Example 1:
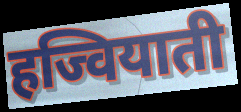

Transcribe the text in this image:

हज्वियाती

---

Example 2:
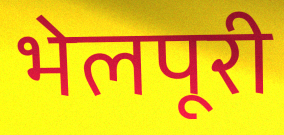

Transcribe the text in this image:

भेलपूरी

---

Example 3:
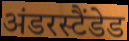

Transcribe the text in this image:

अंडरस्टैंडेड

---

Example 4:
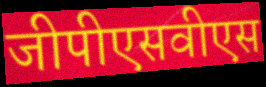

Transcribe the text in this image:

जीपीएसवीएस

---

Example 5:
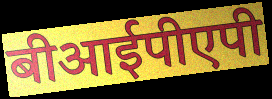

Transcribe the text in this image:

बीआईपीएपी